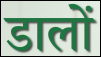
डालों